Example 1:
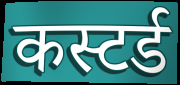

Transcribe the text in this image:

कस्टर्ड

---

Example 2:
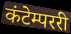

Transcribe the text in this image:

कंटेम्पररी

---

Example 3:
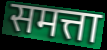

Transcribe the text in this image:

समत्ता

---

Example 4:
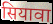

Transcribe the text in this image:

सियावा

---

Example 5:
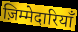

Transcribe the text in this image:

ज़िम्मेदारियाँ